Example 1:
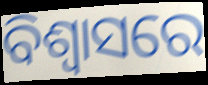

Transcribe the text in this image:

ବିଶ୍ବାସରେ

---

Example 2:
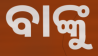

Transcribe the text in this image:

ବାଙ୍କୁ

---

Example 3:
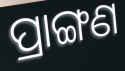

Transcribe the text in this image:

ପ୍ରାଙ୍ଗଣ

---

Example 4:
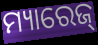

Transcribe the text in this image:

ମ୍ୟାରେଜ୍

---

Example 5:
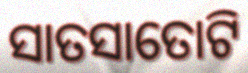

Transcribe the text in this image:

ସାତସାତୋଟି